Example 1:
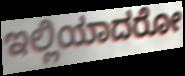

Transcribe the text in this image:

ಇಲ್ಲಿಯಾದರೋ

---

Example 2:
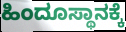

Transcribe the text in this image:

ಹಿಂದೂಸ್ಥಾನಕ್ಕೆ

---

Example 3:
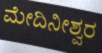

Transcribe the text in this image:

ಮೇದಿನೀಶ್ವರ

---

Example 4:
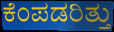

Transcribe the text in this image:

ಕೆಂಪಡರಿತ್ತು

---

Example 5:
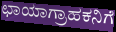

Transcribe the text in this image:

ಛಾಯಾಗ್ರಾಹಕನಿಗೆ